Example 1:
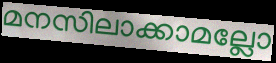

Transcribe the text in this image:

മനസിലാക്കാമല്ലോ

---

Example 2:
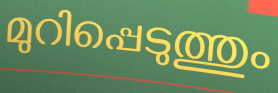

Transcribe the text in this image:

മുറിപ്പെടുത്തും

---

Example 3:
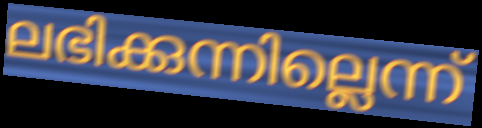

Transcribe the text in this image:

ലഭിക്കുന്നില്ലെന്ന്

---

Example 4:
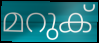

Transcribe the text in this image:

മറുക്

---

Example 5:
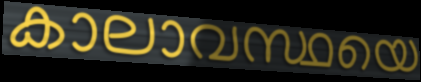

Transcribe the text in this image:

കാലാവസ്ഥയെ